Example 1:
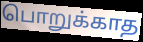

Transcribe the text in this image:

பொறுக்காத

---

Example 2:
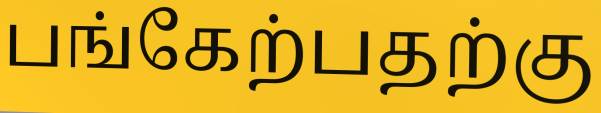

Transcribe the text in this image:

பங்கேற்பதற்கு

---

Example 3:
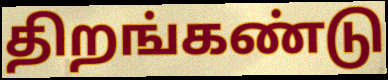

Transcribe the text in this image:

திறங்கண்டு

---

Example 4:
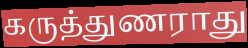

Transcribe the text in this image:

கருத்துணராது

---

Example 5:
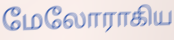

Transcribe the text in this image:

மேலோராகிய